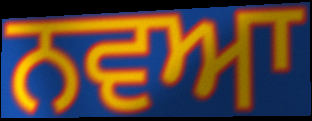
ਨਵਆ